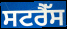
ਸਟਰੈੱਸ